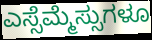
ಎಸ್ಸೆಮ್ಮೆಸ್ಸುಗಳೂ